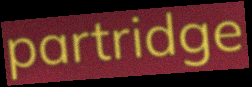
partridge